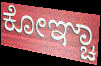
ಕೋಞ್ಚಾ